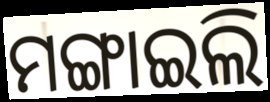
ମଙ୍ଗାଇଲି